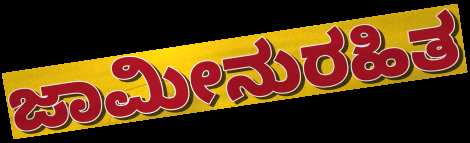
ಜಾಮೀನುರಹಿತ